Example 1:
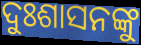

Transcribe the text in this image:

ଦୁଃଶାସନଙ୍କୁ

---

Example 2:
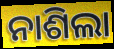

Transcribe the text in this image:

ନାଶିଲା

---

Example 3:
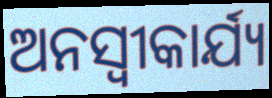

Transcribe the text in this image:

ଅନସ୍ବୀକାର୍ଯ୍ୟ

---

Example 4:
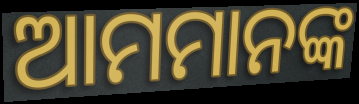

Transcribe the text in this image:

ଆମମାନଙ୍କ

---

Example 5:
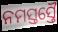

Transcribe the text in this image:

ନମସ୍ତସ୍ତୈ